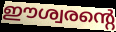
ഈശ്വരന്റെ